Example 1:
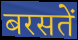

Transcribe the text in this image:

बरसतें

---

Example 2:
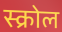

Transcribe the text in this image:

स्क्रोल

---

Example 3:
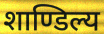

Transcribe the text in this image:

शाण्डिल्य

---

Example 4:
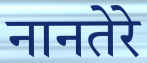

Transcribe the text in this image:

नानतेरे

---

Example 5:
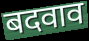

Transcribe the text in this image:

बदवाव